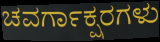
ಚವರ್ಗಾಕ್ಷರಗಳು